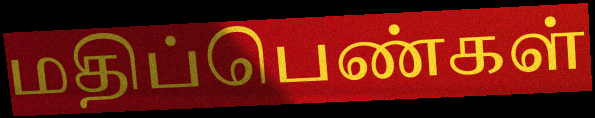
மதிப்பெண்கள்